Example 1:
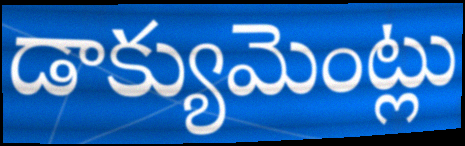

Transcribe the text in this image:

డాక్యుమెంట్లు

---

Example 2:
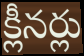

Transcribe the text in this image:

క్లీనర్లు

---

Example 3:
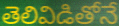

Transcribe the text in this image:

తెలివిడితోనే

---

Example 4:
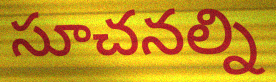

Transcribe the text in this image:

సూచనల్ని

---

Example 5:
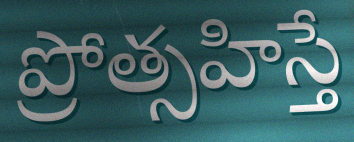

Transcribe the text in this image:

ప్రోత్సహిస్తే